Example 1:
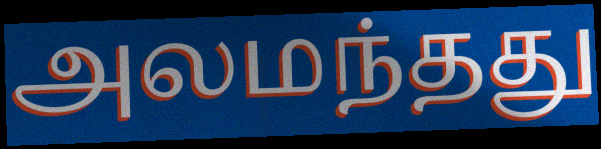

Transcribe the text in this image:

அலமந்தது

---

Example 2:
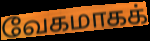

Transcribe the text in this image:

வேகமாகக்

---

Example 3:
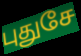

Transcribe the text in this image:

புதுசே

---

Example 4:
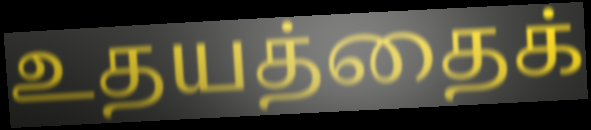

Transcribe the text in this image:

உதயத்தைக்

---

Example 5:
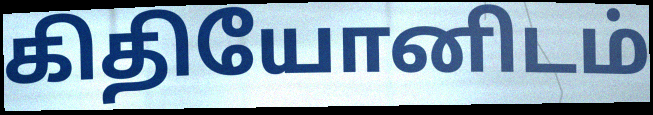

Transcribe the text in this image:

கிதியோனிடம்